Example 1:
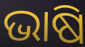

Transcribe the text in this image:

ଭାଷି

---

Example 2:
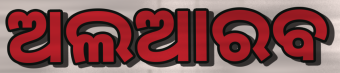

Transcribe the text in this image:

ଅଲଆରବ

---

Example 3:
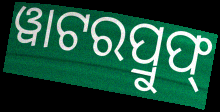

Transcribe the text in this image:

ୱାଟରପ୍ରୁଫ୍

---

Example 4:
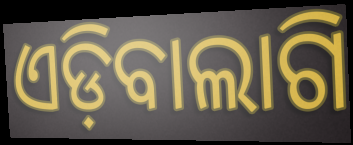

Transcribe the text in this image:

ଏଡ଼ିବାଲାଗି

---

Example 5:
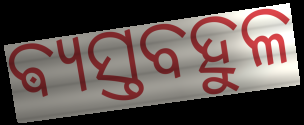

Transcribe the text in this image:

ଵ୍ୟସ୍ତବହୁଳ